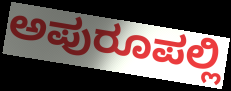
ಅಪುರೂಪಲ್ಲಿ